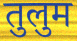
तुलुम